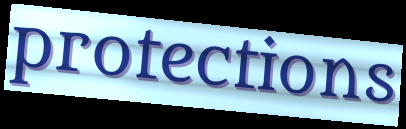
protections